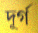
দূৰ্গ